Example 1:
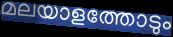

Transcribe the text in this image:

മലയാളത്തോടും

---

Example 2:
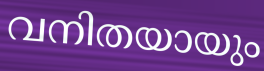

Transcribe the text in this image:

വനിതയായും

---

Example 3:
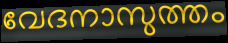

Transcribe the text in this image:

വേദനാസുത്തം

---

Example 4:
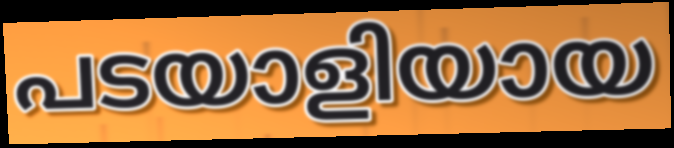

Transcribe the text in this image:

പടയാളിയായ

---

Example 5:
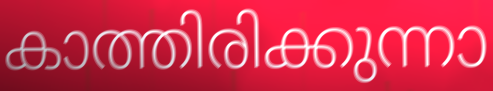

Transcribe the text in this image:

കാത്തിരിക്കുന്നാ